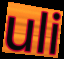
uli